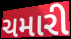
ચમારી